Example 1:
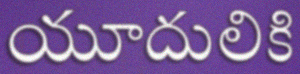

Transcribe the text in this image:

యూదులికి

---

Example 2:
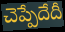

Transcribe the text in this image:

చెప్పేదేదీ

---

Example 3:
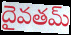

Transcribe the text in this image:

దైవతమ్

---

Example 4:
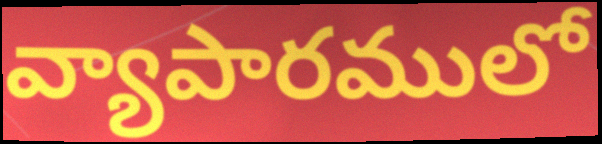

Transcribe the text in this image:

వ్యాపారములో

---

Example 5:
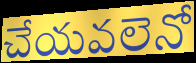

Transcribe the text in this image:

చేయవలెనో